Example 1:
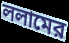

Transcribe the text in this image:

ললামের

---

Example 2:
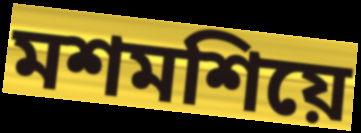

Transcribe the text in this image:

মশমশিয়ে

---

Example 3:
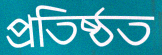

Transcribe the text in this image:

প্রতিষ্ঠত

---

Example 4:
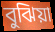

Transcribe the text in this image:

বুঝিয়া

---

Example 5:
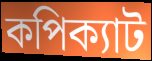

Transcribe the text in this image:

কপিক্যাট